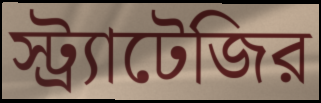
স্ট্র্যাটেজির